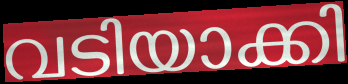
വടിയാക്കി